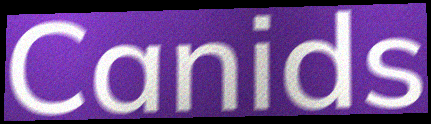
Canids